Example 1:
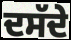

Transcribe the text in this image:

ਦਸੱਦੇ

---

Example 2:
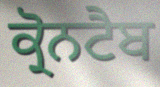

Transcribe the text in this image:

ਕ੍ਰੋਨਟੈਬ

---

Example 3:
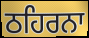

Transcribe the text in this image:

ਠਹਿਰਨਾ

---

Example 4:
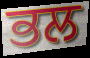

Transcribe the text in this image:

ਭਲ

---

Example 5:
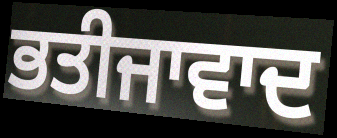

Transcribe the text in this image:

ਭਤੀਜਾਵਾਦ